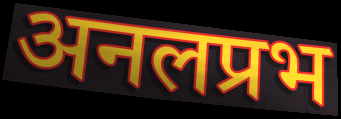
अनलप्रभ